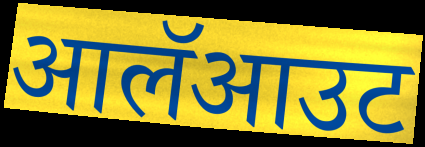
आलॅआउट